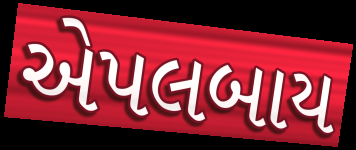
એપલબાય